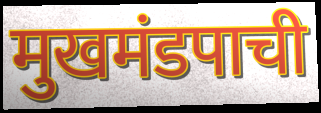
मुखमंडपाची